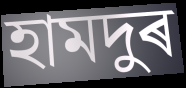
হামদুৰ